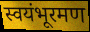
स्वयंभूरमण